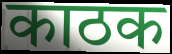
काठक